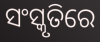
ସଂସ୍କୃତିରେ